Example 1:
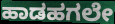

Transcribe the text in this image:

ಹಾಡಹಗಲೇ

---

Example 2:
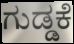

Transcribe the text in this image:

ಗುಡ್ಡಕೆ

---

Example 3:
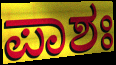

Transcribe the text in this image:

ಪಾಶಃ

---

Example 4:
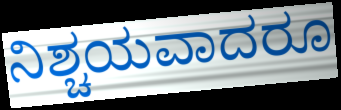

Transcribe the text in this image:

ನಿಶ್ಚಯವಾದರೂ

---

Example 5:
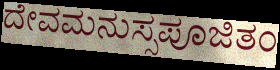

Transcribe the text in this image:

ದೇವಮನುಸ್ಸಪೂಜಿತಂ